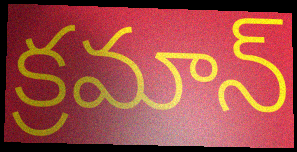
క్రమాన్